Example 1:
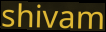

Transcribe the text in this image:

shivam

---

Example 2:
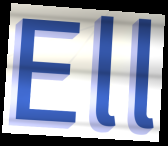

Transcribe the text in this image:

Ell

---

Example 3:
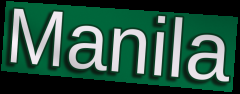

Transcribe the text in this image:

Manila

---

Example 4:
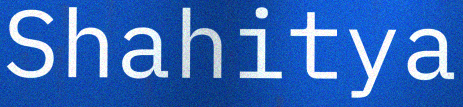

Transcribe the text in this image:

Shahitya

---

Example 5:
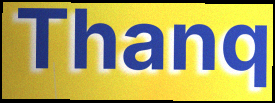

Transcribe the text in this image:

Thanq